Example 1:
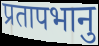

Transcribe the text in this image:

प्रतापभानु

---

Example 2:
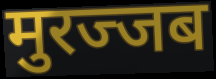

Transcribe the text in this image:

मुरज्जब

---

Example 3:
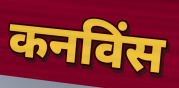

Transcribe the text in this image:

कनविंस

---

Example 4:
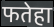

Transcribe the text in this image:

फतेहा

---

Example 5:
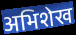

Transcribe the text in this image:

अभिशेख